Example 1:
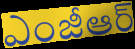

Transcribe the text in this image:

ఎంజీఆర్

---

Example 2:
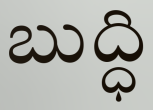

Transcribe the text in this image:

బుద్ధి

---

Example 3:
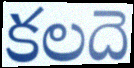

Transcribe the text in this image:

కలదె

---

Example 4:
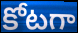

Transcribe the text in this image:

కోటగా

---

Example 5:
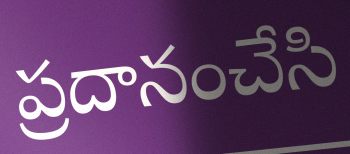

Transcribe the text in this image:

ప్రదానంచేసి